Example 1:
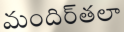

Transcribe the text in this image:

మందిర్‌తలా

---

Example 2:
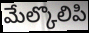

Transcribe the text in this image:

మేల్కొలిపి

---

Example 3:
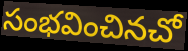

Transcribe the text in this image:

సంభవించినచో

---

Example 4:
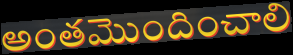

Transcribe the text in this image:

అంతమొందించాలి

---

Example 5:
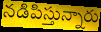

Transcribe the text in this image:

నడిపిస్తున్నారు